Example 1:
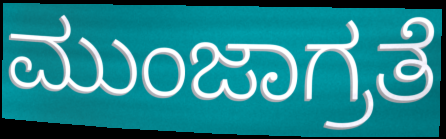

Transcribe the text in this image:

ಮುಂಜಾಗ್ರತೆ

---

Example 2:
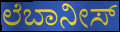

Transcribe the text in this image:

ಲೆಬಾನೀಸ್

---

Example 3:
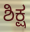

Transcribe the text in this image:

ಶಿಕ್ಷ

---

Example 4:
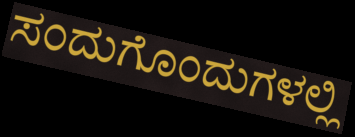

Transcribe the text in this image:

ಸಂದುಗೊಂದುಗಳಲ್ಲಿ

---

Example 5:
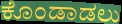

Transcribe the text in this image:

ಕೊಂಡಾಡಲು